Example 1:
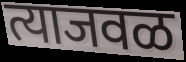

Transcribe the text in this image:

त्याजवळ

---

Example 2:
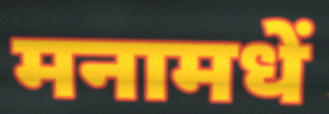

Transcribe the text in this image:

मनामधें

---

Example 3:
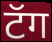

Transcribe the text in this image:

टॅग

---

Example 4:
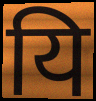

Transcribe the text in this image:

यि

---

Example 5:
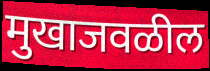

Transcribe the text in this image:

मुखाजवळील